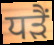
ਧੜੈਂ